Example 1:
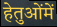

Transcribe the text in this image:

हेतुओंमें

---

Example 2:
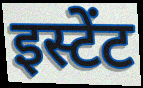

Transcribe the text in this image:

इस्टेंट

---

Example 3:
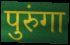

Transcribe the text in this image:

पुरुंगा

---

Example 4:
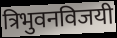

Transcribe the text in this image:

त्रिभुवनविजयी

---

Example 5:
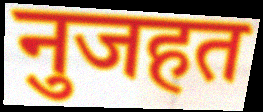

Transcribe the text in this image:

नुजहत